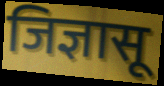
जिज्ञासू